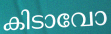
കിടാവോ